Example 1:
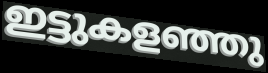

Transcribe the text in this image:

ഇട്ടുകളഞ്ഞു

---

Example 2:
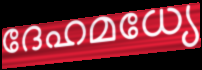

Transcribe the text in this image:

ദേഹമധ്യേ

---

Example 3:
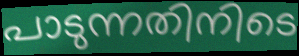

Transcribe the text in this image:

പാടുന്നതിനിടെ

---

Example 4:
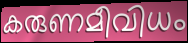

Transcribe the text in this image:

കരുണമീവിധം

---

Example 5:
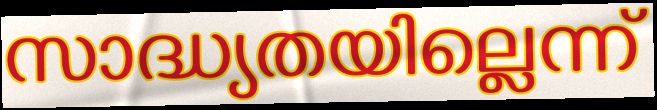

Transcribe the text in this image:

സാദ്ധ്യതയില്ലെന്ന്